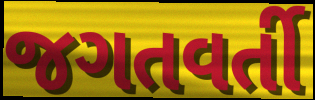
જગતવર્તી